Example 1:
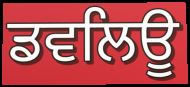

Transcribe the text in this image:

ਡਵਲਿਊ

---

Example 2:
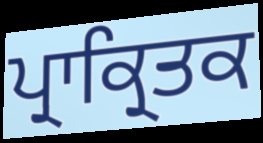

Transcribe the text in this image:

ਪ੍ਰਾਕ੍ਰਿਤਕ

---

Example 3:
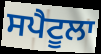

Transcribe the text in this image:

ਸਪੈਟੂਲਾ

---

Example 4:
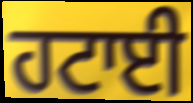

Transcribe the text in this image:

ਹਟਾਈ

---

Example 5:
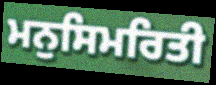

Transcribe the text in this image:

ਮਨੁਸਿਮਰਿਤੀ